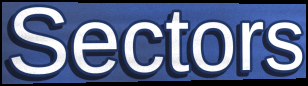
Sectors